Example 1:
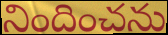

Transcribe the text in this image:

నిందించను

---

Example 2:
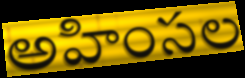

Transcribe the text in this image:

అహింసల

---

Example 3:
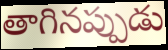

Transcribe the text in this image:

తాగినప్పుడు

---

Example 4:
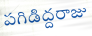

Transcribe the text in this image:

పగిడిద్దరాజు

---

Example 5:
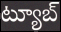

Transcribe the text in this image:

ట్యూబ్